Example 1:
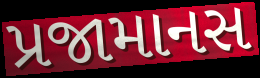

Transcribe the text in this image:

પ્રજામાનસ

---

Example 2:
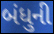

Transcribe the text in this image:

બંધુની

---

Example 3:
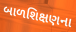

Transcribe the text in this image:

બાળશિક્ષણના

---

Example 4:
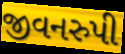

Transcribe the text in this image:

જીવનરુપી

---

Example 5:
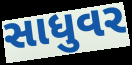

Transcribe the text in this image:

સાધુવર